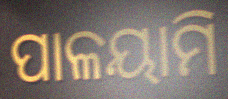
ପାଳୟାମି